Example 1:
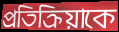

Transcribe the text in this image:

প্রতিক্রিয়াকে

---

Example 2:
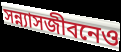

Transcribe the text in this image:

সন্ন্যাসজীবনেও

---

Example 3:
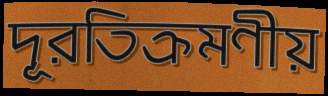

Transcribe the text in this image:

দূরতিক্রমণীয়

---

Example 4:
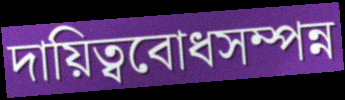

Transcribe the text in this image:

দায়িত্ববোধসম্পন্ন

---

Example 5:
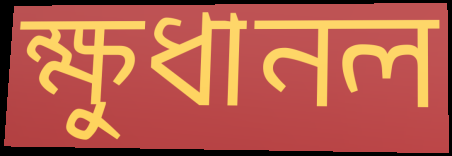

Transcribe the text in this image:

ক্ষুধানল